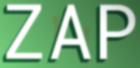
ZAP